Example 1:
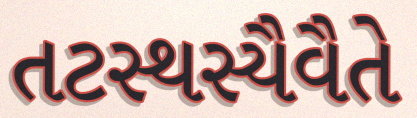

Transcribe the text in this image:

તટસ્થસ્યૈવૈતે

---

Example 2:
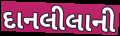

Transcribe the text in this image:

દાનલીલાની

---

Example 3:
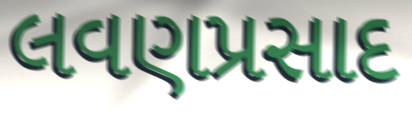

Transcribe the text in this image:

લવણપ્રસાદ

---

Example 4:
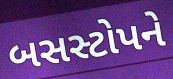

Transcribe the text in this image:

બસસ્ટોપને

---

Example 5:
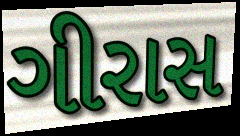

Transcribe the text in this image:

ગીરાસ